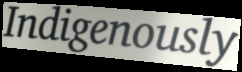
Indigenously